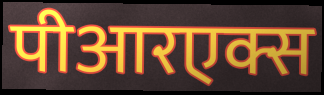
पीआरएक्स